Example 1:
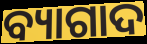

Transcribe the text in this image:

ବ୍ୟାଗାଦ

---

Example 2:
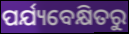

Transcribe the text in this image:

ପର୍ଯ୍ୟବେକ୍ଷିତରୁ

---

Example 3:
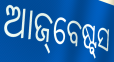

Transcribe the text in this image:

ଆଜ୍‌ବେଷ୍ଟ୍‌ସ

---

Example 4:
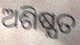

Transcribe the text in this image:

ଅଶିଷ୍ଯତ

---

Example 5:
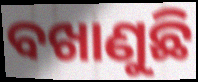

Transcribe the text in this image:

ବଖାଣୁଛି